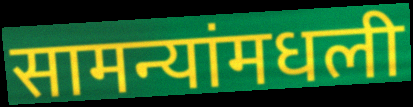
सामन्यांमधली